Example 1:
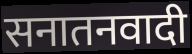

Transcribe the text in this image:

सनातनवादी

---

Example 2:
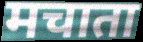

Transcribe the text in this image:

मचाता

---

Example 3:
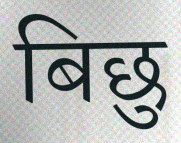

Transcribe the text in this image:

बिछु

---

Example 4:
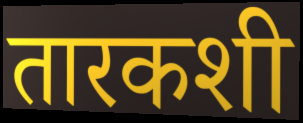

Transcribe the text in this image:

तारकशी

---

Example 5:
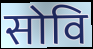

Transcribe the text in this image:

सोवि